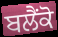
ਬਲੈਂਕੋ